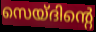
സെയ്ദിന്റെ